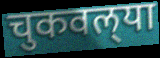
चुकवल्या